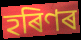
হৰিণৰ